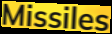
Missiles